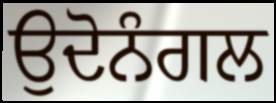
ਉਦੋਨੰਗਲ